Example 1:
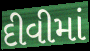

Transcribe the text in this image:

દીવીમાં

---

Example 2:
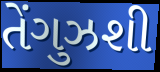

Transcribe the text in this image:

તેંગુઝશી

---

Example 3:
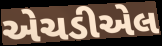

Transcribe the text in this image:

એચડીએલ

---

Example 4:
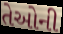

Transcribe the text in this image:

તેઓની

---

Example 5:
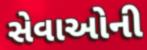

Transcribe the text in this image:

સેવાઓની